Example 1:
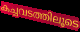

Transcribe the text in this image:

കച്ചവടത്തിലൂടെ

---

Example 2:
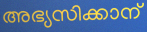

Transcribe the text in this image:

അഭ്യസിക്കാന്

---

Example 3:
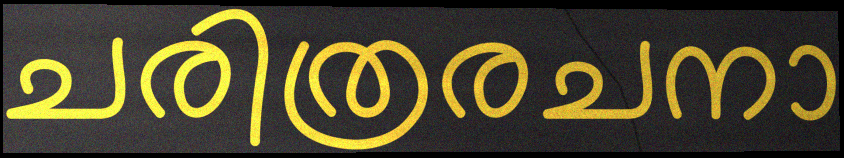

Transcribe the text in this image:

ചരിത്രരചനാ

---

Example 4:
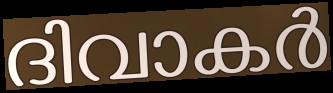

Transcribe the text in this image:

ദിവാകർ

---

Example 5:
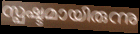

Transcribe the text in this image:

സ്പഷ്ടമായിരുന്നു